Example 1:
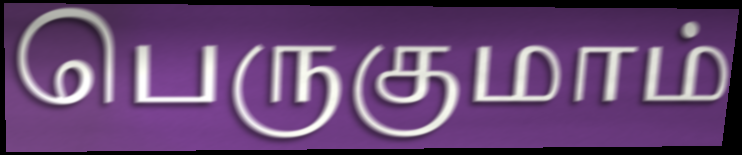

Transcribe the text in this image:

பெருகுமாம்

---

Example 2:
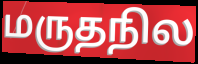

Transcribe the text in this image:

மருதநில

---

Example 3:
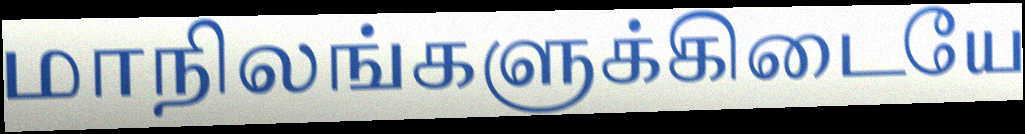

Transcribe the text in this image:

மாநிலங்களுக்கிடையே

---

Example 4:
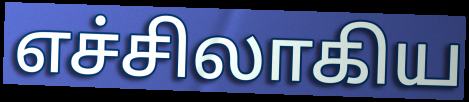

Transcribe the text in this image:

எச்சிலாகிய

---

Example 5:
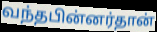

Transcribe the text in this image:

வந்தபின்னர்தான்